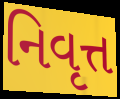
નિવૃત્ત